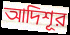
আদিশূর